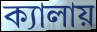
ক্যালায়